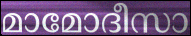
മാമോദീസാ